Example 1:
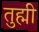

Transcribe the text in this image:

तुह्मी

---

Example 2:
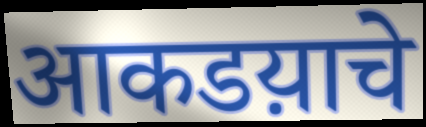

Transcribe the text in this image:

आकडय़ाचे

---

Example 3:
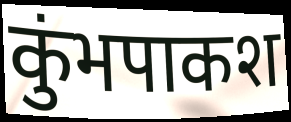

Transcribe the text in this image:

कुंभपाकश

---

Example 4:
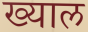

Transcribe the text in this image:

ख्याल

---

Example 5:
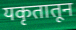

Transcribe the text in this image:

यकृतातून